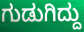
ಗುಡುಗಿದ್ದು